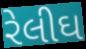
રેલીઘ